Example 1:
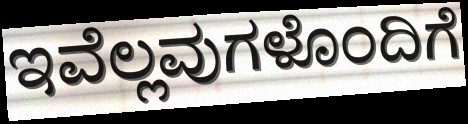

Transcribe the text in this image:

ಇವೆಲ್ಲವುಗಳೊಂದಿಗೆ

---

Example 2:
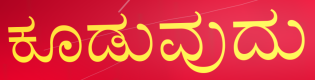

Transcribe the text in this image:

ಕೂಡುವುದು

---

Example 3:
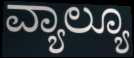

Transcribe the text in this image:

ವ್ಯಾಲ್ಯೂ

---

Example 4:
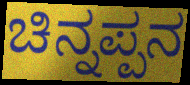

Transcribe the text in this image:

ಚಿನ್ನಪ್ಪನ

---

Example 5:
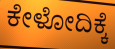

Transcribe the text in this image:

ಕೇಳೋದಿಕ್ಕೆ